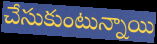
చేసుకుంటున్నాయి